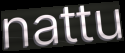
nattu